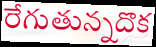
రేగుతున్నదొక